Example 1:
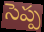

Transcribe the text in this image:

సెప్ప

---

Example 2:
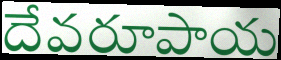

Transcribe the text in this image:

దేవరూపాయ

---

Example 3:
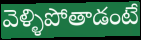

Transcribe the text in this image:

వెళ్ళిపోతాడంటే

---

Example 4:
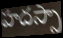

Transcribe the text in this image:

హదస్సా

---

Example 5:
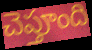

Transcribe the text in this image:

చెప్తూంది